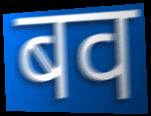
बव